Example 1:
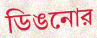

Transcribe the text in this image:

ডিঙনোর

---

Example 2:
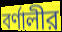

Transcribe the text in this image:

বর্ণালীর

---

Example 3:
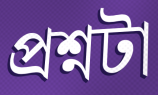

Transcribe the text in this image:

প্রশ্নটা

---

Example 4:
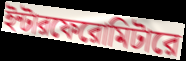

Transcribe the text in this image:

ইন্টারফেরোমিটারে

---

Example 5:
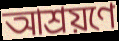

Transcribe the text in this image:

আশ্রয়ণে